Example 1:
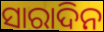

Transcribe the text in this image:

ସାରାଦିନ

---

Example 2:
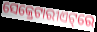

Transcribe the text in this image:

ସେକ୍ରେଟାରୀଏଟ୍‌ରେ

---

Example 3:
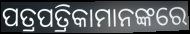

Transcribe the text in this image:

ପତ୍ରପତ୍ରିକାମାନଙ୍କରେ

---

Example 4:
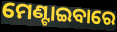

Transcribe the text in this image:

ମେଣ୍ଟାଇବାରେ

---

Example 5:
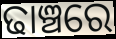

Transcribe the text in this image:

ଢାଞ୍ଚରେ